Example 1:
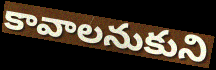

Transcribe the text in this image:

కావాలనుకుని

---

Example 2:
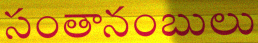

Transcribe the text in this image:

సంతానంబులు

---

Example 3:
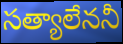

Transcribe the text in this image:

సత్యాలేననీ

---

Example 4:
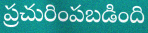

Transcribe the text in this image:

ప్రచురింపబడింది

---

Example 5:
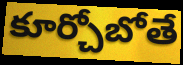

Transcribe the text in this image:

కూర్చోబోతే